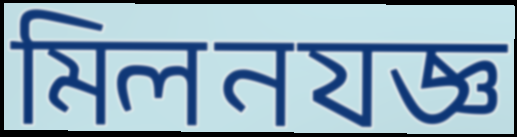
মিলনযজ্ঞ